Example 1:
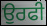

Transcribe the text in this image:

ਉਰਫੀ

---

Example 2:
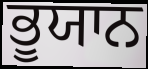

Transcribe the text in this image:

ਭੂਯਾਨ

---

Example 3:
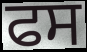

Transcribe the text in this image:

ਫਸ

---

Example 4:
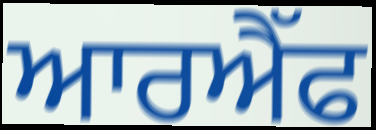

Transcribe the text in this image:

ਆਰਐੱਫ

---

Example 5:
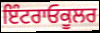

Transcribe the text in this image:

ਇੰਟਰਾਓਕੂਲਰ